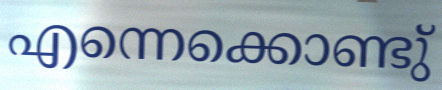
എന്നെക്കൊണ്ടു്